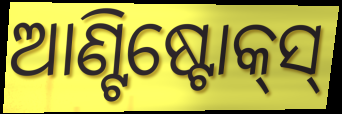
ଆଣ୍ଟିଷ୍ଟୋକ୍‍ସ୍